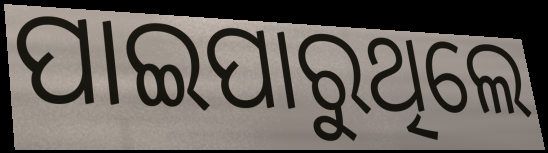
ପାଇପାରୁଥିଲେ